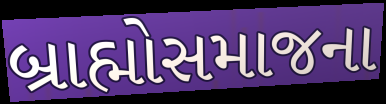
બ્રાહ્મોસમાજના